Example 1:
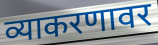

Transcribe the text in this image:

व्याकरणावर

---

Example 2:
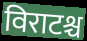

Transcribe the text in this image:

विराटश्च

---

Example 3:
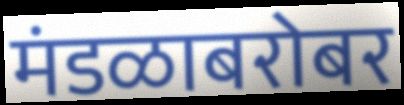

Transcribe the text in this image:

मंडळाबरोबर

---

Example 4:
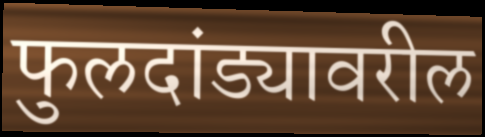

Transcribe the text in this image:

फुलदांड्यावरील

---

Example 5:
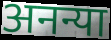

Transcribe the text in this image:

अनन्या